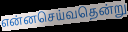
என்னசெய்வதென்று